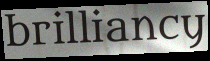
brilliancy